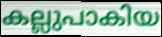
കല്ലുപാകിയ